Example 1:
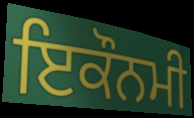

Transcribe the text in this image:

ਇਕੌਨਮੀ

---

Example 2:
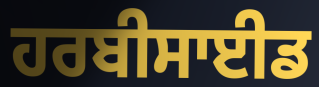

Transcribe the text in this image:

ਹਰਬੀਸਾਈਡ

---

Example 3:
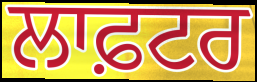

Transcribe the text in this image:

ਲਾਫ਼ਟਰ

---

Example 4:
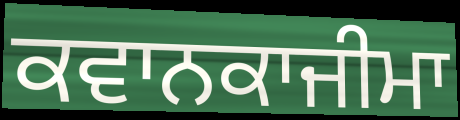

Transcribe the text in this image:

ਕਵਾਨਕਾਜੀਮਾ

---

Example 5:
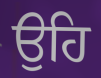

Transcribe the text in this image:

ਉਹਿ